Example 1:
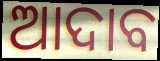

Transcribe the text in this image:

ଆଦାବ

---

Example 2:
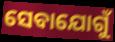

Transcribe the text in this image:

ସେବାଯୋଗୁଁ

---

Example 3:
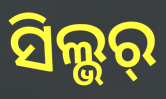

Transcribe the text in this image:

ସିଲ୍ଭର୍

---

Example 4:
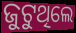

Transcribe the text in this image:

ଜୁଟୁଥିଲେ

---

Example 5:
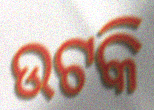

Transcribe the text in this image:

ଉଟକି